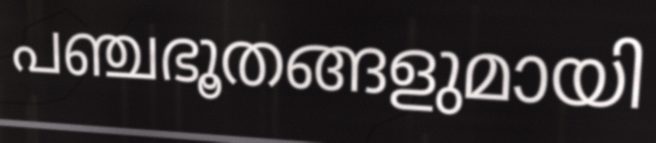
പഞ്ചഭൂതങ്ങളുമായി